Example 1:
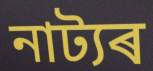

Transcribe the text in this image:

নাট্যৰ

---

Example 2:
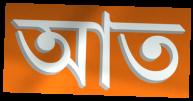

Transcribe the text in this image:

আত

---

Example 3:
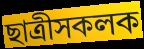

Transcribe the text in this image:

ছাত্ৰীসকলক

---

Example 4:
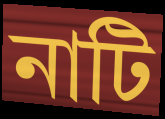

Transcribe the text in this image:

নাটি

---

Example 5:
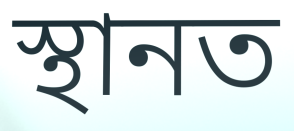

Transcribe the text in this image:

স্থানত